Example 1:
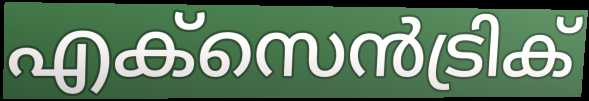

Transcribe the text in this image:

എക്സെൻട്രിക്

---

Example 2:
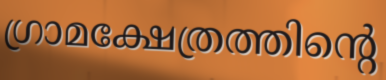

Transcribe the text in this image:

ഗ്രാമക്ഷേത്രത്തിന്റെ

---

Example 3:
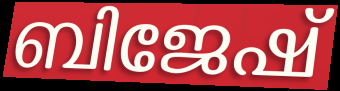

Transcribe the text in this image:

ബിജേഷ്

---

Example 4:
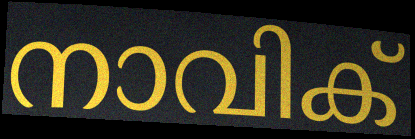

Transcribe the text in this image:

നാവിക്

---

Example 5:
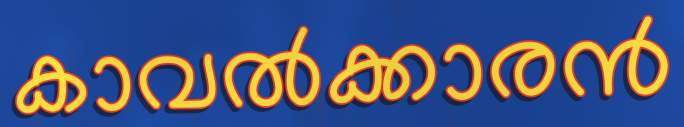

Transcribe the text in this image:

കാവൽക്കാരൻ